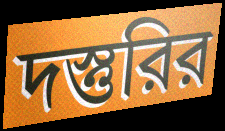
দস্তুরির